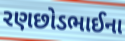
રણછોડભાઈના